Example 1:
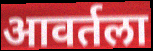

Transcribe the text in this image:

आवर्तला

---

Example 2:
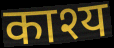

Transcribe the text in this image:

काश्य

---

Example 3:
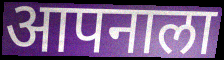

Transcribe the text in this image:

आपनाला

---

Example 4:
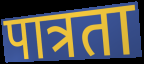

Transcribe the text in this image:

पात्रता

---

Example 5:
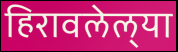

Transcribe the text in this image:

हिरावलेल्या